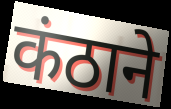
कंठाने